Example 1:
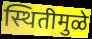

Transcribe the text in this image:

स्थितीमुळे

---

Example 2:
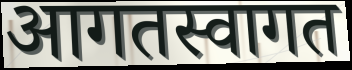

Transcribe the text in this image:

आगतस्वागत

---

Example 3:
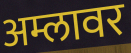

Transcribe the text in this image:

अम्लावर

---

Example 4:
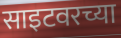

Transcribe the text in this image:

साइटवरच्या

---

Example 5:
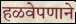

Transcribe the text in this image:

हळवेपणाने